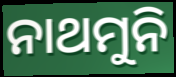
ନାଥମୁନି